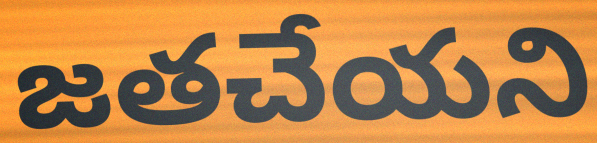
జతచేయని